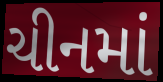
ચીનમાં